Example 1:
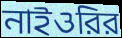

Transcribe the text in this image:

নাইওরির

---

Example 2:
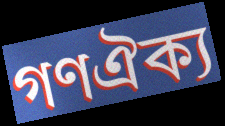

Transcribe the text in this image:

গণঐক্য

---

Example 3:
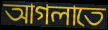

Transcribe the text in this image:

আগলাতে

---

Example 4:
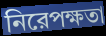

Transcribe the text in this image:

নিরেপক্ষতা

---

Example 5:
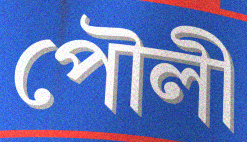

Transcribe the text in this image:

পৌলী